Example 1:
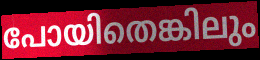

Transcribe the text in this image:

പോയിതെങ്കിലും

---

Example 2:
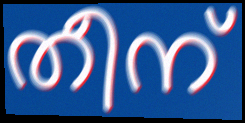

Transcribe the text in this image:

തീന്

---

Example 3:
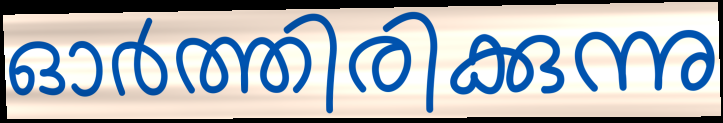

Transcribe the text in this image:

ഓർത്തിരിക്കുന്നു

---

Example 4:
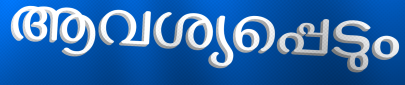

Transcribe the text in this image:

ആവശ്യപ്പെടും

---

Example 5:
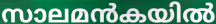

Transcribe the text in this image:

സാലമൻകയിൽ